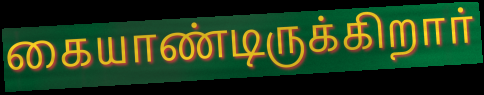
கையாண்டிருக்கிறார்